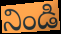
నిండి